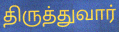
திருத்துவார்